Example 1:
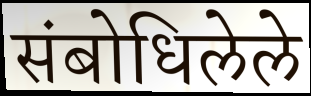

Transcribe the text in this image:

संबोधिलेले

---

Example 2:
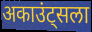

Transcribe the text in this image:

अकाउंट्सला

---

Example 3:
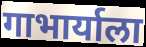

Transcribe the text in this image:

गाभार्याला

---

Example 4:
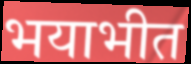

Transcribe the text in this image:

भयाभीत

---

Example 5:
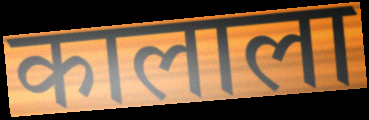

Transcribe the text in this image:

कालाला